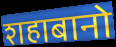
शहाबानो